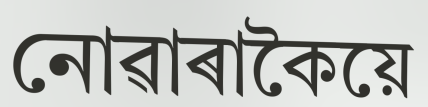
নোৱাৰাকৈয়ে